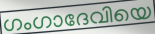
ഗംഗാദേവിയെ